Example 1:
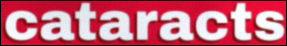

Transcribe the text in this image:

cataracts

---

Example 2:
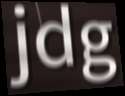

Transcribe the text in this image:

jdg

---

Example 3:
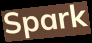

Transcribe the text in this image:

Spark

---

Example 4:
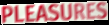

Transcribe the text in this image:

PLEASURES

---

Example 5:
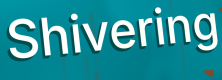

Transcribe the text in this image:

Shivering